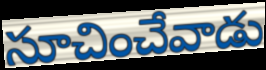
సూచించేవాడు